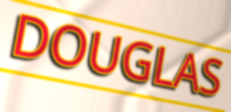
DOUGLAS